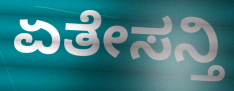
ಏತೇಸನ್ತಿ